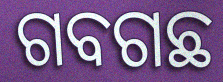
ଗବଗଛ